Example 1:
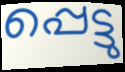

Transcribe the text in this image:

പ്പെട്ടു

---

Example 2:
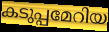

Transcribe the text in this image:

കടുപ്പമേറിയ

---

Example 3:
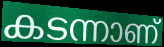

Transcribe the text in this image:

കടന്നാണ്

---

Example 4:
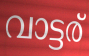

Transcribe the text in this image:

വാട്ടര്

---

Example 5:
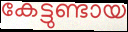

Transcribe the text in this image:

കേട്ടുണ്ടായ